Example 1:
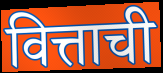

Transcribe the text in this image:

वित्ताची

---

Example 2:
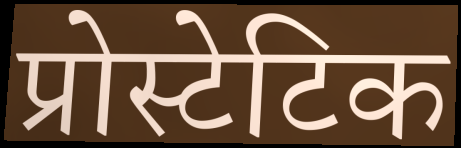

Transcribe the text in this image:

प्रोस्टेटिक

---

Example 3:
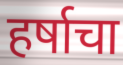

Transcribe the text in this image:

हर्षाचा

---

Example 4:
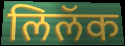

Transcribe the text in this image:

लिलॅक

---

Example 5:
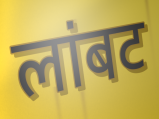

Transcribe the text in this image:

लांबट